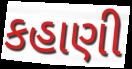
કહાણી